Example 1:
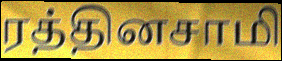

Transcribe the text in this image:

ரத்தினசாமி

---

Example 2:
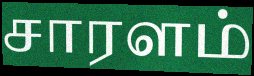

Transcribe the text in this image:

சாரளம்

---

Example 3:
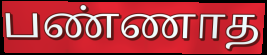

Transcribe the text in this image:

பண்ணாத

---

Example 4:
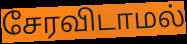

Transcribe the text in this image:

சேரவிடாமல்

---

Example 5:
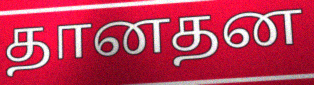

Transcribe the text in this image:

தானதன